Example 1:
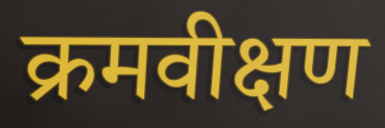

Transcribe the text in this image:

क्रमवीक्षण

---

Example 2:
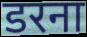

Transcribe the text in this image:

डरना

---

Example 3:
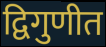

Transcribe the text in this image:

द्विगुणीत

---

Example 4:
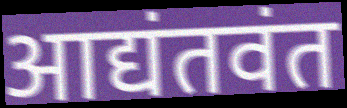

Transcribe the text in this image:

आद्यंतवंत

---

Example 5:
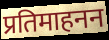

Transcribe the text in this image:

प्रतिमाहनन